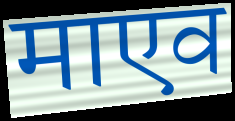
माएव